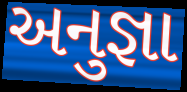
અનુજ્ઞા